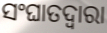
ସଂଘାତଦ୍ୱାରା